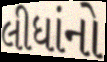
લીધાંનો